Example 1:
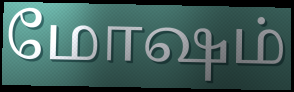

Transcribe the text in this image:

மோஷம்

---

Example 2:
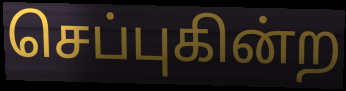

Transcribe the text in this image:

செப்புகின்ற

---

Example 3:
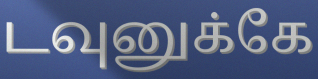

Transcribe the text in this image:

டவுனுக்கே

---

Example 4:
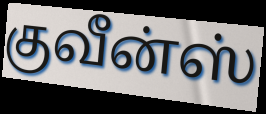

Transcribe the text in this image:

குவீன்ஸ்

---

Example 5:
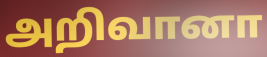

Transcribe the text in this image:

அறிவானா